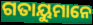
ଗତାୟୁମାନେ